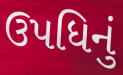
ઉપધિનું